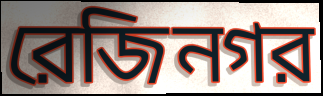
রেজিনগর